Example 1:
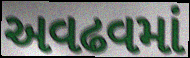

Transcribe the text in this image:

અવઢવમાં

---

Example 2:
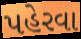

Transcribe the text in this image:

પહેરવા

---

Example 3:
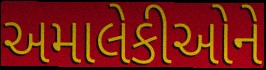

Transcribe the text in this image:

અમાલેકીઓને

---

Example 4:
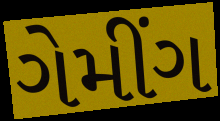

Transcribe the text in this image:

ગેમીંગ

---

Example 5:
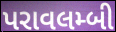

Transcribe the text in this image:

પરાવલમ્બી